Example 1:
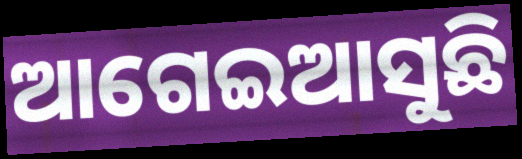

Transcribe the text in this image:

ଆଗେଇଆସୁଛି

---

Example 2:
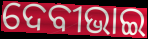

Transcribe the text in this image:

ଦେବୀଭାଇ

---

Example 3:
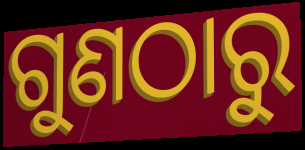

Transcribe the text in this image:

ଗୁଣଠାରୁ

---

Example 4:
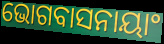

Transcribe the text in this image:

ଭୋଗବାସନାୟାଂ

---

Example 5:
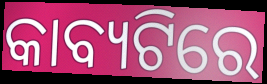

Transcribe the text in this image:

କାବ୍ୟଟିରେ